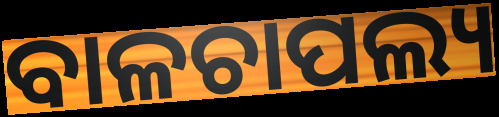
ବାଳଚାପଲ୍ୟ